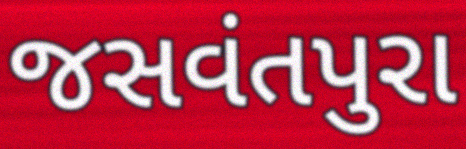
જસવંતપુરા